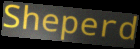
Sheperd